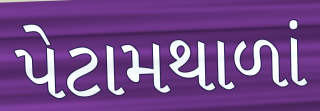
પેટામથાળાં